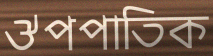
ঔপপাতিক